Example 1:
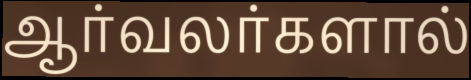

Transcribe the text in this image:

ஆர்வலர்களால்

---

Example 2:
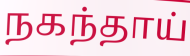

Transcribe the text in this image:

நகந்தாய்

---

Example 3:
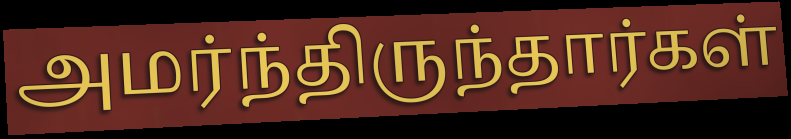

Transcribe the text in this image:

அமர்ந்திருந்தார்கள்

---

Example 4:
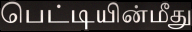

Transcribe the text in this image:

பெட்டியின்மீது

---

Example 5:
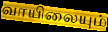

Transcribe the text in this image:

வாயிலையும்